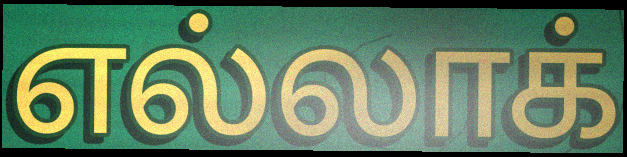
எல்லாக்